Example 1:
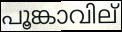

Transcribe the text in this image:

പൂങ്കാവില്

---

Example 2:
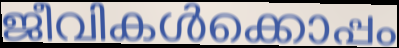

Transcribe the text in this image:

ജീവികൾക്കൊപ്പം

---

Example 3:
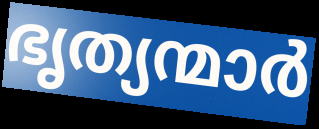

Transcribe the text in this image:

ഭൃത്യന്മാർ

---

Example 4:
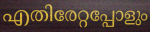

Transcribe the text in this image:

എതിരേറ്റപ്പോളും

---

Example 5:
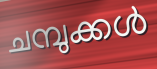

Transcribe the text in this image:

ചമ്പുക്കൾ